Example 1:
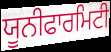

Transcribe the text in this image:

ਯੂਨੀਫਾਰਮਿਟੀ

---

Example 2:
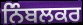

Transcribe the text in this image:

ਨਿੰਬਲਕਰ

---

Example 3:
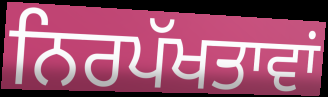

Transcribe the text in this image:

ਨਿਰਪੱਖਤਾਵਾਂ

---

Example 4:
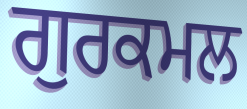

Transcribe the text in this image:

ਗੁਰਕਮਲ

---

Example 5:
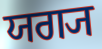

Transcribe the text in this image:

ਯਗ੍ਯ